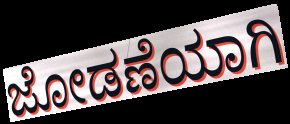
ಜೋಡಣೆಯಾಗಿ